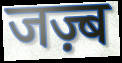
जज़्ब